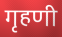
गृहणी